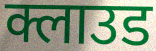
क्लाउड